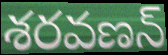
శరవణన్